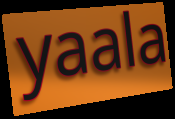
yaala